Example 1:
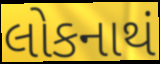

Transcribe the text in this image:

લોકનાથં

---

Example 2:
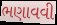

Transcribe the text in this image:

ભણાવવી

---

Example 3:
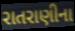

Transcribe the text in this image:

રાતરાણીના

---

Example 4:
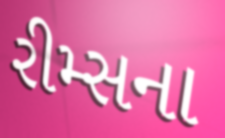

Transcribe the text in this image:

રીમ્સના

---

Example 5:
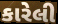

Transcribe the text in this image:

કારેલી